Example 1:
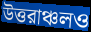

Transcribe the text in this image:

উত্তরাঞ্চলও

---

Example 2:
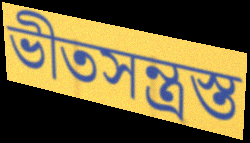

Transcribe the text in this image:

ভীতসন্ত্রস্ত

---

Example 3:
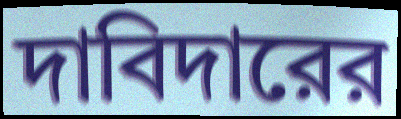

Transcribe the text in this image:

দাবিদারের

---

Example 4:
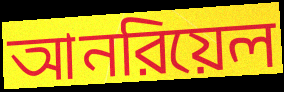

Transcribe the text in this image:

আনরিয়েল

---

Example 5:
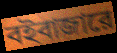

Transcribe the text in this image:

বইবাজারে